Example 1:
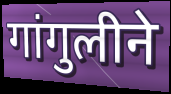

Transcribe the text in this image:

गांगुलीने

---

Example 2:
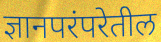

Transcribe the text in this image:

ज्ञानपरंपरेतील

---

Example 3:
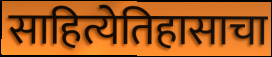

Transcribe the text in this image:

साहित्येतिहासाचा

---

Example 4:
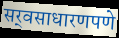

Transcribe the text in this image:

सर्वसाधारणपणे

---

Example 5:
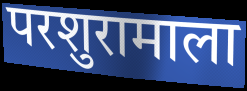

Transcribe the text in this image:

परशुरामाला